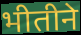
भीतीने